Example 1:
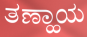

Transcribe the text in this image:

ತಣ್ಹಾಯ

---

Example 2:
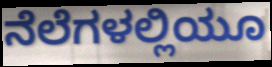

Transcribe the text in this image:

ನೆಲೆಗಳಲ್ಲಿಯೂ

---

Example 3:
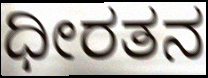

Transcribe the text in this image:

ಧೀರತನ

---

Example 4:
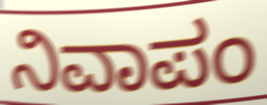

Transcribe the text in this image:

ನಿವಾಪಂ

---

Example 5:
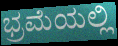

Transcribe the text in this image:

ಭ್ರಮೆಯಲ್ಲಿ